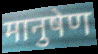
मानुषेण